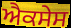
ਐਕਸੇਸ